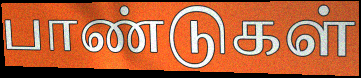
பாண்டுகள்